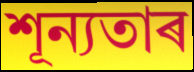
শূন্যতাৰ